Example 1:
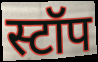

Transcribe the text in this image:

स्टॉप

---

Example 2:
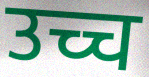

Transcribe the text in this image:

उच्च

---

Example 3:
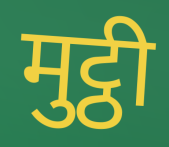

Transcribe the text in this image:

मुट्ठी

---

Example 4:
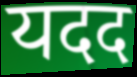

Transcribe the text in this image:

यदद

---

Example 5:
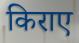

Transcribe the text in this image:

किराए